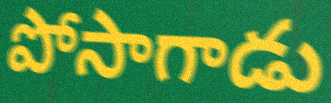
పోసాగాడు